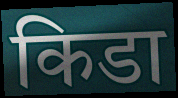
किडा